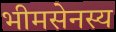
भीमसेनस्य